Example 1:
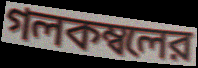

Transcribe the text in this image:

গলকম্বলের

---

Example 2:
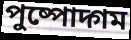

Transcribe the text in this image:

পুষ্পোদ্গম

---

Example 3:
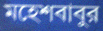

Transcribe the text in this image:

মহেশবাবুর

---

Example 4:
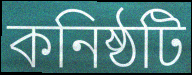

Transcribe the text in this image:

কনিষ্ঠটি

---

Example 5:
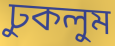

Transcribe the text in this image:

ঢুকলুম